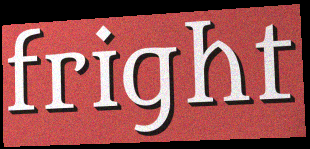
fright